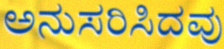
ಅನುಸರಿಸಿದವು